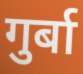
गुर्बा